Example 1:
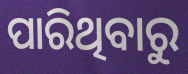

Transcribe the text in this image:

ପାରିଥିବାରୁ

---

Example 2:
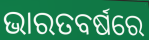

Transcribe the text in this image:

ଭାରତବର୍ଷରେ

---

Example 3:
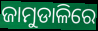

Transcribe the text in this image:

ଜାମୁଡାଳିରେ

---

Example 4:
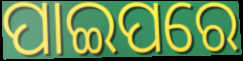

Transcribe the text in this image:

ପାଇପରେ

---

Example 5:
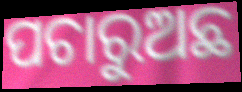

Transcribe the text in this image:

ପଚାରୁଅଛ